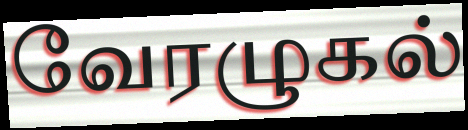
வேரழுகல்